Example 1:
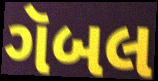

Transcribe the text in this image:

ગૅબલ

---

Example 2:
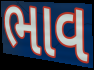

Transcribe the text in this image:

ભાવ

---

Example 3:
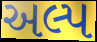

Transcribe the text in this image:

અલ્પ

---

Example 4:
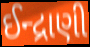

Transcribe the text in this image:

ઈન્દ્રાણી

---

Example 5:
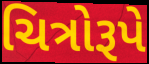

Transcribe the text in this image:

ચિત્રોરૂપે